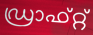
ഡ്രാഫ്റ്റ്